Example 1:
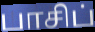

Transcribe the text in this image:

பாசிப்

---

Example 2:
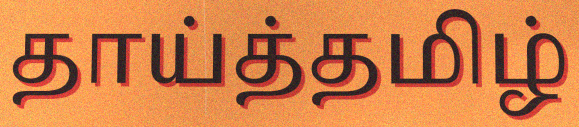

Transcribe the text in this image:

தாய்த்தமிழ்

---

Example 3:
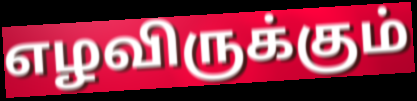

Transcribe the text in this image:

எழவிருக்கும்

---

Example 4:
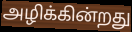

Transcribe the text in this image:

அழிக்கின்றது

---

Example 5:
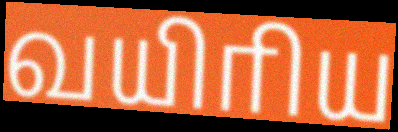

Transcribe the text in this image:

வயிரிய